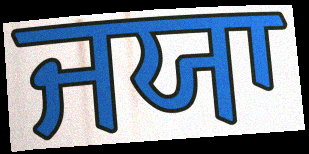
ਜਯਾ